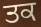
ਤਕ